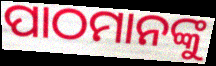
ପାଠମାନଙ୍କୁ